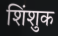
शिंशुक